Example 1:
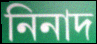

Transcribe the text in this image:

নিনাদ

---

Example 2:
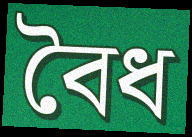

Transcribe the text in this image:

বৈধ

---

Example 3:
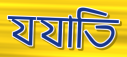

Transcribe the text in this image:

যযাতি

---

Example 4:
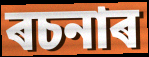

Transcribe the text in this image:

ৰচনাৰ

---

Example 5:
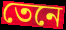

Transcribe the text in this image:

তেনে